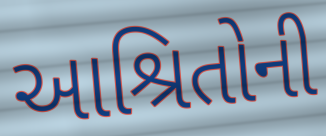
આશ્રિતોની